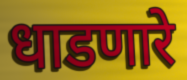
धाडणारे